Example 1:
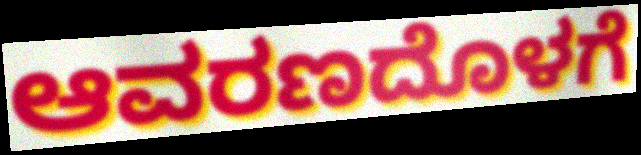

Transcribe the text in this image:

ಆವರಣದೊಳಗೆ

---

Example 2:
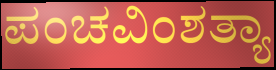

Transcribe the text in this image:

ಪಂಚವಿಂಶತ್ಯಾ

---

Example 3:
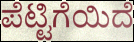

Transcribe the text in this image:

ಪೆಟ್ಟಿಗೆಯಿದೆ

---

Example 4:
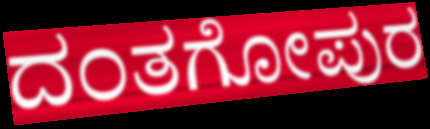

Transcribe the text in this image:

ದಂತಗೋಪುರ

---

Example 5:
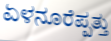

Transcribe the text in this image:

ಏಳನೂರೆಪ್ಪತ್ತು